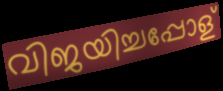
വിജയിച്ചപ്പോള്